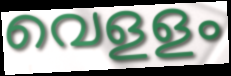
വെളളം